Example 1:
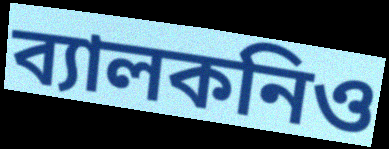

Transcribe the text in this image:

ব্যালকনিও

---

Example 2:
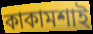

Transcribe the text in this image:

কাকামশাই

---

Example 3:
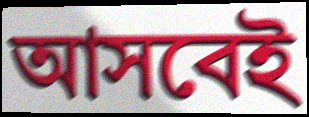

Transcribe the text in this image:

আসবেই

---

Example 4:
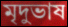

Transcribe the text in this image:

মৃদুভাষ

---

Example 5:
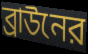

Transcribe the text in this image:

ব্রাউনের